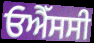
ਓਐੱਸਸੀ